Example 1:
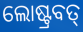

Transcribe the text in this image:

ଲୋଷ୍ଟ୍ରବତ୍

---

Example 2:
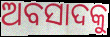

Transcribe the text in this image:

ଅବସାଦକୁ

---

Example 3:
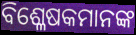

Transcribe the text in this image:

ବିଶ୍ଳେଷକମାନଙ୍କ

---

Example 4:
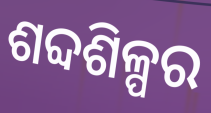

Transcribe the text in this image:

ଶବ୍ଦଶିଳ୍ପର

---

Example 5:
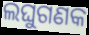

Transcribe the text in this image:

ଲଘୁଗଣକ